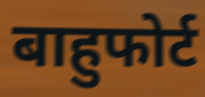
बाहुफोर्ट